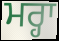
ਮਰ੍ਹਾ